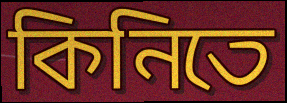
কিনিতে